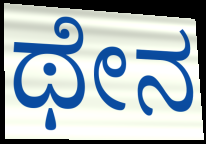
ಥೇನ